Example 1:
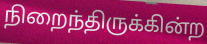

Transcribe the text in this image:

நிறைந்திருக்கின்ற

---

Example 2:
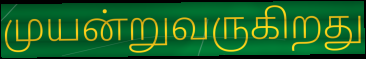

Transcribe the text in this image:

முயன்றுவருகிறது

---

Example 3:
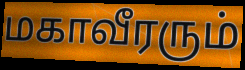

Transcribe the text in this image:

மகாவீரரும்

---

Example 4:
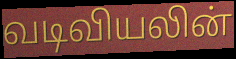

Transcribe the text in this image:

வடிவியலின்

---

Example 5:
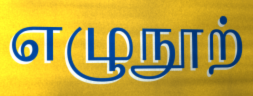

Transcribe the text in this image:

எழுநூற்